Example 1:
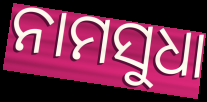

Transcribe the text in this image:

ନାମସୁଧା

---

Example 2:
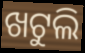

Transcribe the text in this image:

ଖଟୁଲି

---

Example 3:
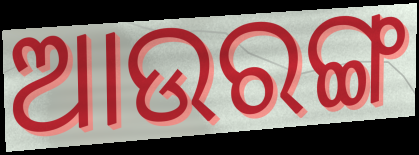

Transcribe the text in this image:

ଆଉରଙ୍ଗ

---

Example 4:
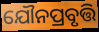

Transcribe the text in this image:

ଯୌନପ୍ରବୃତ୍ତି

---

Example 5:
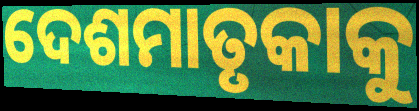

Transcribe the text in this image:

ଦେଶମାତୃକାକୁ